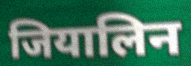
जियालिन